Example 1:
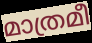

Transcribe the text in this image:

മാത്രമീ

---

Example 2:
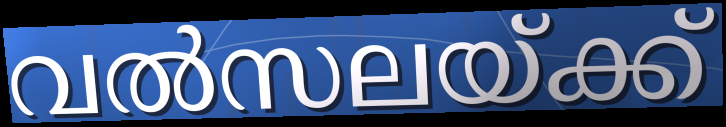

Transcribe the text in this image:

വൽസലയ്ക്ക്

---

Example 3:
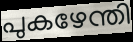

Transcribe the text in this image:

പുകഴേന്തി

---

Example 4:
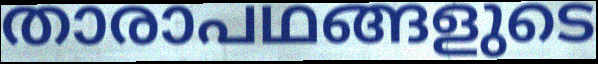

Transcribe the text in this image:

താരാപഥങ്ങളുടെ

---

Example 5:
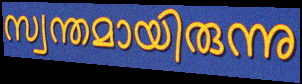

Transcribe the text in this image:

സ്വന്തമായിരുന്നു